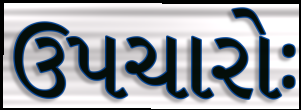
ઉપચારોઃ